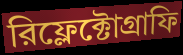
রিফ্লেক্টোগ্রাফি